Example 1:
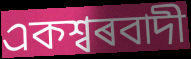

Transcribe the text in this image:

একশ্বৰবাদী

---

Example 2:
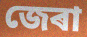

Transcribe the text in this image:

জেৰা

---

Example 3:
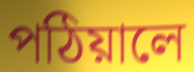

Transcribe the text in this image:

পঠিয়ালে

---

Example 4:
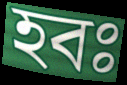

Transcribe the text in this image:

হবঃ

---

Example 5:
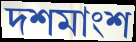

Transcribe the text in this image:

দশমাংশ